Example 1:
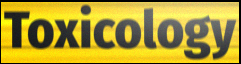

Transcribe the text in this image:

Toxicology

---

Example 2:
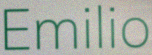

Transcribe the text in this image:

Emilio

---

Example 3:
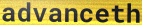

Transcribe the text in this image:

advanceth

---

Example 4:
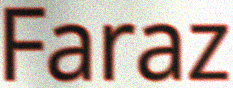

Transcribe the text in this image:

Faraz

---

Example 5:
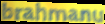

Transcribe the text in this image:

brahmanu